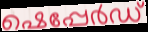
ഷെപ്പേർഡ്